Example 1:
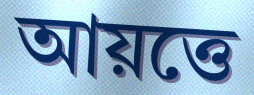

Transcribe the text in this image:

আয়ত্তে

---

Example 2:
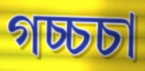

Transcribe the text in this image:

গচ্চচা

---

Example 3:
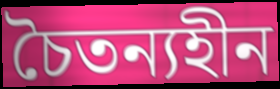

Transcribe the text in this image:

চৈতন্যহীন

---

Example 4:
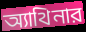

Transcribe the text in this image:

অ্যাথিনার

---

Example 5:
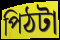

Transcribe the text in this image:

পিঠটা